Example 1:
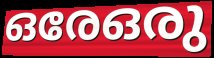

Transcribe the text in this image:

ഒരേഒരു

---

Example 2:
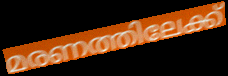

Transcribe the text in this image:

മരണത്തിലേക്ക്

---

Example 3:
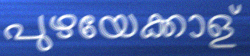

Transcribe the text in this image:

പുഴയേക്കാള്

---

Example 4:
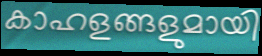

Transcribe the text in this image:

കാഹളങ്ങളുമായി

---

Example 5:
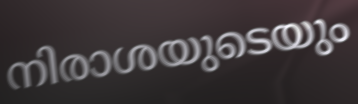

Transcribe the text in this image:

നിരാശയുടെയും